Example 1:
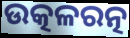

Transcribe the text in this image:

ଉତ୍କଳରତ୍ନ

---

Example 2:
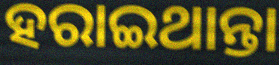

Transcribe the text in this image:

ହରାଇଥାନ୍ତା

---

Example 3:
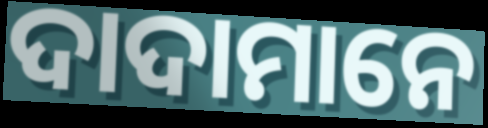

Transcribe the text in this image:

ଦାଦାମାନେ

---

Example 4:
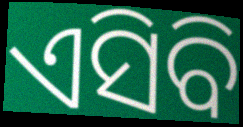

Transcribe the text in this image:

ଏସିବି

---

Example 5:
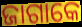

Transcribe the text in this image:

ଜାଗାକେ